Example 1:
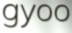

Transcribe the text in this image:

gyoo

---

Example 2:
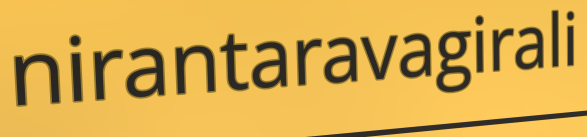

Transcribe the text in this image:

nirantaravagirali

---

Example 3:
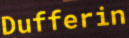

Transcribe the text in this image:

Dufferin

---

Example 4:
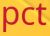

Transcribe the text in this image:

pct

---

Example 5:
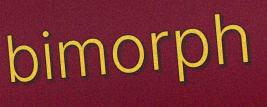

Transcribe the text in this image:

bimorph